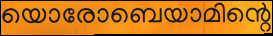
യൊരോബെയാമിന്റെ